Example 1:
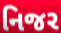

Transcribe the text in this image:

નિજર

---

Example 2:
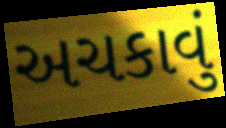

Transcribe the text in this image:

અચકાવું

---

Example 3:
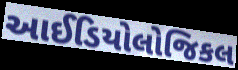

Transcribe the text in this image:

આઈડિયોલોજિકલ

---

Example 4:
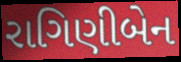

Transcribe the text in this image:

રાગિણીબેન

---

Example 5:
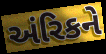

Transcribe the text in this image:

અંરિકને